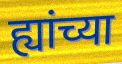
ह्यांच्या